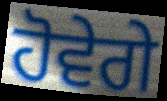
ਹੋਵੇਗੇ